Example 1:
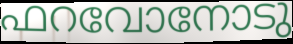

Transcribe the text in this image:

ഫറവോനോടു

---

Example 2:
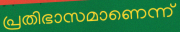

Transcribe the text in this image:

പ്രതിഭാസമാണെന്ന്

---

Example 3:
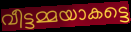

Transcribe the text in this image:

വീട്ടമ്മയാകട്ടെ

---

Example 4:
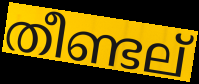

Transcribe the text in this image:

തീണ്ടല്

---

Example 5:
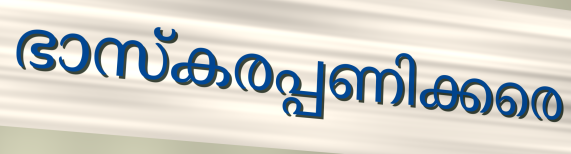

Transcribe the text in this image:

ഭാസ്കരപ്പണിക്കരെ